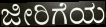
ಜೀರಿಗೆಯ